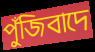
পুঁজিবাদে